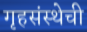
गृहसंस्थेची